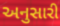
અનુસારી